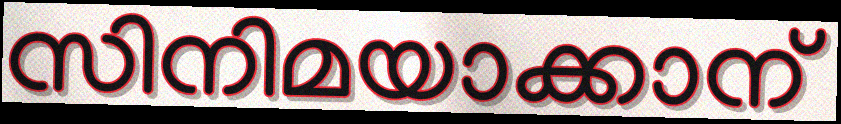
സിനിമയാക്കാന്